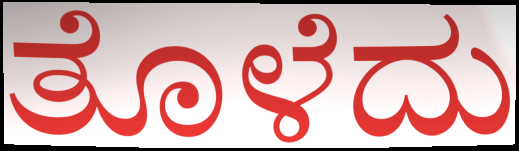
ತೊಳೆದು